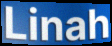
Linah